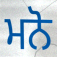
ਮਨੋ